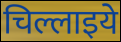
चिल्लाइये